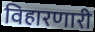
विहारणारी